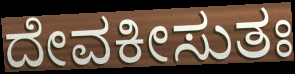
ದೇವಕೀಸುತಃ